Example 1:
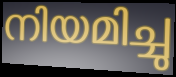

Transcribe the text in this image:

നിയമിച്ചു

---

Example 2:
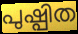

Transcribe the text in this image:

പുഷ്പിത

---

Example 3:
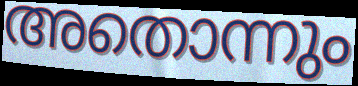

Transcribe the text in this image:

അതൊന്നും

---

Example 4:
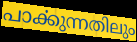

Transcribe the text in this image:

പാൎക്കുന്നതിലും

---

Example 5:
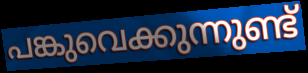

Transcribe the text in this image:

പങ്കുവെക്കുന്നുണ്ട്